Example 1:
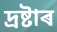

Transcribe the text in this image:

দ্ৰষ্টাৰ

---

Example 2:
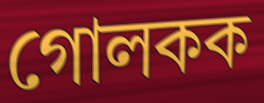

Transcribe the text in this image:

গোলকক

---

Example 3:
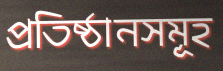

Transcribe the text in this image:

প্ৰতিষ্ঠানসমূহ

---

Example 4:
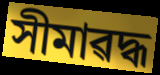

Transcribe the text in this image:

সীমাৱদ্ধ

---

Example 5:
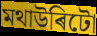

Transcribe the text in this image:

মথাউৰিটো